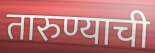
तारुण्याची